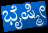
ಭೈಷ್ಮೀ